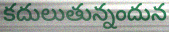
కదులుతున్నందున